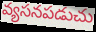
వ్యసనపడుచు